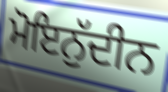
ਮੋਇਨੁੱਦੀਨ